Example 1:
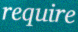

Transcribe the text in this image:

require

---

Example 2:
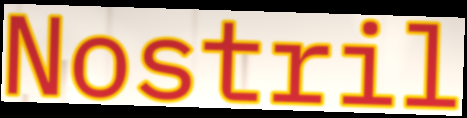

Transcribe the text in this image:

Nostril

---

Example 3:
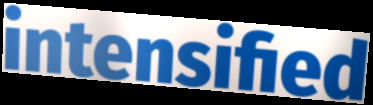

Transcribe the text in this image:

intensified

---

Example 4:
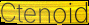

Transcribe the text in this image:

Ctenoid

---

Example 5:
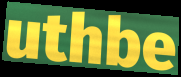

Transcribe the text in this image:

uthbe